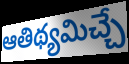
ఆతిథ్యమిచ్చే